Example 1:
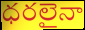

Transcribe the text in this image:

ధరలైనా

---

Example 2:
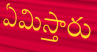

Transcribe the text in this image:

ఏమిస్తారు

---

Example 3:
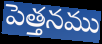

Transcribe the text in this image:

పెత్తనము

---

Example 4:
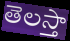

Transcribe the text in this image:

తెలస్తా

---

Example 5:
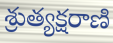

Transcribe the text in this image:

శ్రుత్యక్షరాణి